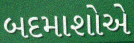
બદમાશોએ